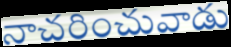
నాచరించువాడు